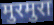
मुरमुरा